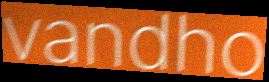
vandho